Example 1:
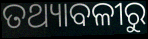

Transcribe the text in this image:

ତଥ୍ୟାବଳୀରୁ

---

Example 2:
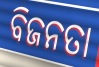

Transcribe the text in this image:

ବିଜନତା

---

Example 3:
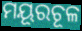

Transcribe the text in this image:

ମୟୂରଚୂଳ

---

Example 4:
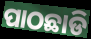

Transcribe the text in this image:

ପାଠଛାଡି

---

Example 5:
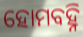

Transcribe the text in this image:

ହୋମବହ୍ନି